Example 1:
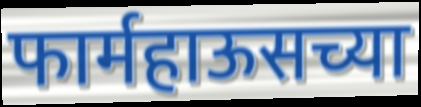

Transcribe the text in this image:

फार्महाऊसच्या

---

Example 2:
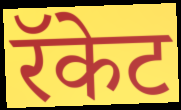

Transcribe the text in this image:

रॅकेट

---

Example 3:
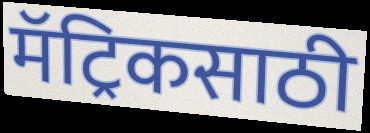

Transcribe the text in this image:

मॅट्रिकसाठी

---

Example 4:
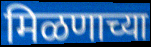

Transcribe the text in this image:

मिळणाच्या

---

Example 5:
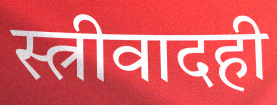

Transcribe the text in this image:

स्त्रीवादही